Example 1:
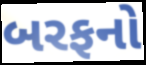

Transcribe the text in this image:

બરફનો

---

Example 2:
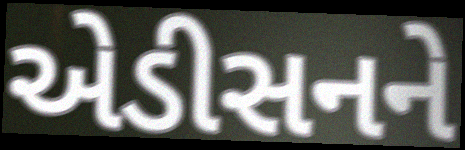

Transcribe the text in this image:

એડીસનને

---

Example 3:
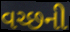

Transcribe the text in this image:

વચ્છની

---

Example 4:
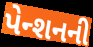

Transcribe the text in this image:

પેન્શનની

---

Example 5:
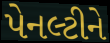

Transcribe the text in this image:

પેનલ્ટીને